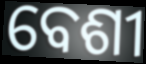
ବେଶୀ